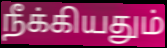
நீக்கியதும்